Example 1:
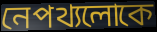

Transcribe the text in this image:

নেপথ্যলোকে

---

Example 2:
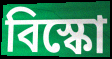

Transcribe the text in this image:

বিস্কো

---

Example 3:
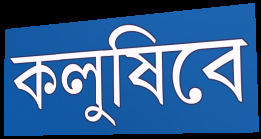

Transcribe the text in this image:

কলুষিবে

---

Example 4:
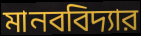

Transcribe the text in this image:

মানববিদ্যার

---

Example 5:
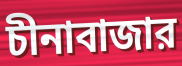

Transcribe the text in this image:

চীনাবাজার